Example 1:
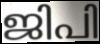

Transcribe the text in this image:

ജിപി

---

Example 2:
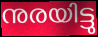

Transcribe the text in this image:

നുരയിട്ടു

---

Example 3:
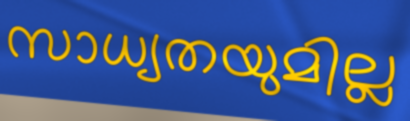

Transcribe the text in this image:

സാധ്യതയുമില്ല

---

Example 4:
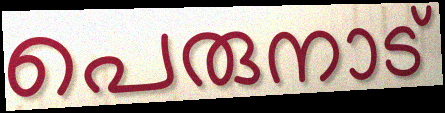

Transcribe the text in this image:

പെരുനാട്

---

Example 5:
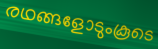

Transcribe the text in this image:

രഥങ്ങളോടുംകൂടെ